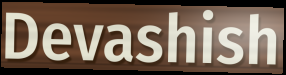
Devashish